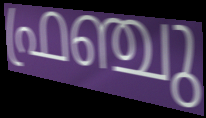
ഫ്രഞ്ചു